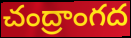
చంద్రాంగద